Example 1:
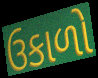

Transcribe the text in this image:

ઉકાળો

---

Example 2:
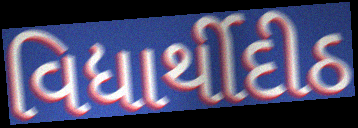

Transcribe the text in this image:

વિદ્યાર્થીદીઠ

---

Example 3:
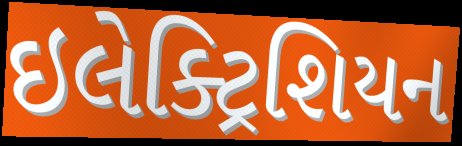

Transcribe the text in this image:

ઇલેક્ટ્રિશિયન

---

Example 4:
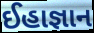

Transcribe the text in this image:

ઈહાજ્ઞાન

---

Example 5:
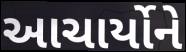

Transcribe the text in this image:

આચાર્યોને